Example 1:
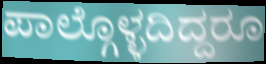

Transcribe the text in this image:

ಪಾಲ್ಗೊಳ್ಳದಿದ್ದರೂ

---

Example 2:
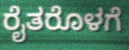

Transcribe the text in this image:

ರೈತರೊಳಗೆ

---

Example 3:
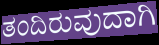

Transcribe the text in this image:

ತಂದಿರುವುದಾಗಿ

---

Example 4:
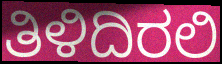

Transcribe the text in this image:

ತಿಳಿದಿರಲಿ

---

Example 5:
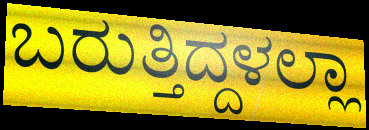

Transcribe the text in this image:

ಬರುತ್ತಿದ್ದಳಲ್ಲಾ